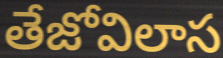
తేజోవిలాస